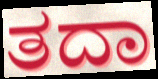
ತದಾ